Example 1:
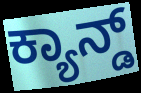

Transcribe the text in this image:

ಕ್ಯಾನ್ಡ್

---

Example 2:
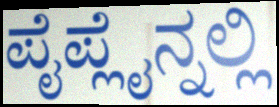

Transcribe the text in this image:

ಪೈಪ್ಲೈನ್ನಲ್ಲಿ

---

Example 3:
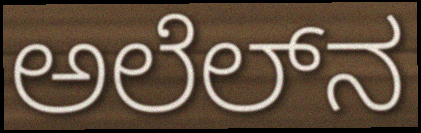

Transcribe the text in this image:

ಅಲೆಲ್‌ನ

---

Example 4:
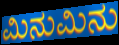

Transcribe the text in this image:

ಮಿನುಮಿನು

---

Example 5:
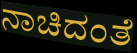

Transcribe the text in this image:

ನಾಚಿದಂತೆ